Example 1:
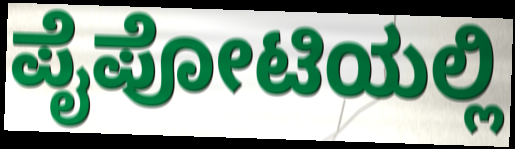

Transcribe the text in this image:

ಪೈಪೋಟಿಯಲ್ಲಿ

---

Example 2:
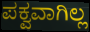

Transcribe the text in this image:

ಪಕ್ವವಾಗಿಲ್ಲ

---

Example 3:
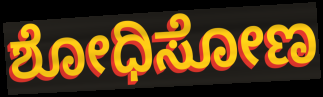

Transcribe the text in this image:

ಶೋಧಿಸೋಣ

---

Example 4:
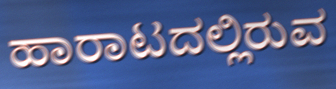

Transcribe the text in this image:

ಹಾರಾಟದಲ್ಲಿರುವ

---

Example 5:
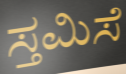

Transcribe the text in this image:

ಸ್ತಮಿಸೆ